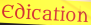
Edication